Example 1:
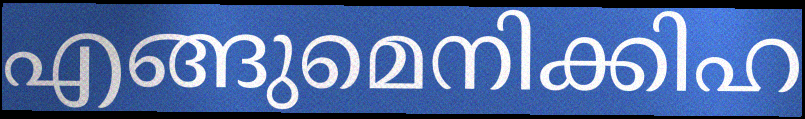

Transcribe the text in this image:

എങ്ങുമെനിക്കിഹ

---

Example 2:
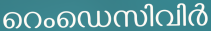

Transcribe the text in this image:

റെംഡെസിവിർ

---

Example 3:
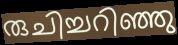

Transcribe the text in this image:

രുചിച്ചറിഞ്ഞു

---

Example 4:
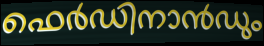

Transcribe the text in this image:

ഫെർഡിനാൻഡും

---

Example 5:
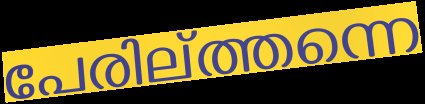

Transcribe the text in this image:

പേരില്ത്തന്നെ